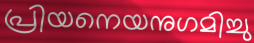
പ്രിയനെയനുഗമിച്ചു